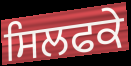
ਸਿਲਫਕੇ